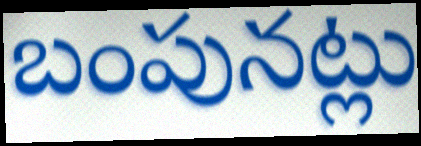
బంపునట్లు